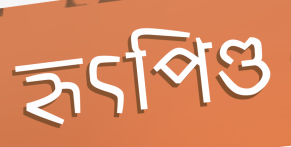
হৃৎপিণ্ড